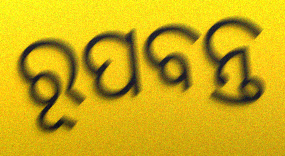
ରୂପବନ୍ତ